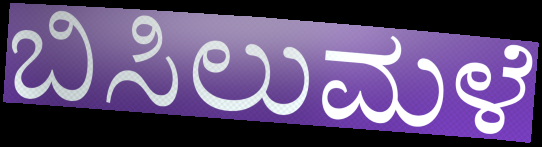
ಬಿಸಿಲುಮಳೆ